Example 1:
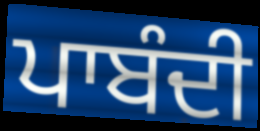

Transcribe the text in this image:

ਪਾਬੰਦੀ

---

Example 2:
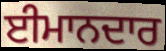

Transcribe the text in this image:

ਈਮਾਨਦਾਰ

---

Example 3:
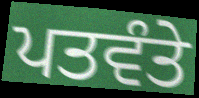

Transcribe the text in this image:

ਪਤਵੰਤੇ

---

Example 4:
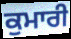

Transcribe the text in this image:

ਕੁਮਾਰੀ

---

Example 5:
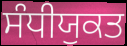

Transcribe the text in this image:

ਸੰਧੀਯੁਕਤ